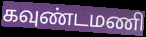
கவுண்டமணி